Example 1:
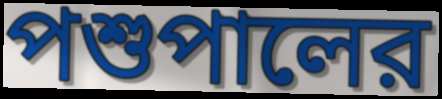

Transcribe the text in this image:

পশুপালের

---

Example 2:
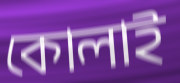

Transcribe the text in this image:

কোলাই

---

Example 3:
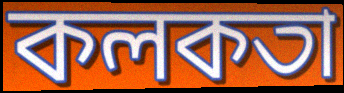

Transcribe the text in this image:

কলকতা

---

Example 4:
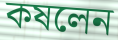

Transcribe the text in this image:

কষলেন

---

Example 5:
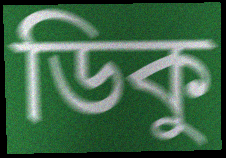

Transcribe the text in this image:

ডিকু